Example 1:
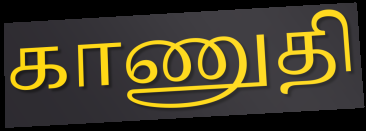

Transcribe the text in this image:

காணுதி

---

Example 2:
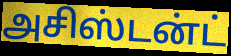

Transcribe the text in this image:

அசிஸ்டன்ட்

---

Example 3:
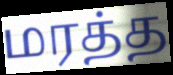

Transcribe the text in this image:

மரத்த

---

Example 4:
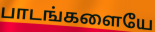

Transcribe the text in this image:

பாடங்களையே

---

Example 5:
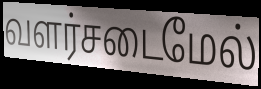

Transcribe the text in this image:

வளர்சடைமேல்